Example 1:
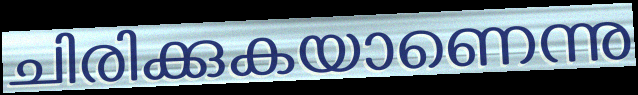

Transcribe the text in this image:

ചിരിക്കുകയാണെന്നു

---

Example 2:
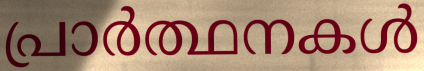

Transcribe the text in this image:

പ്രാർത്ഥനകൾ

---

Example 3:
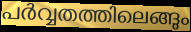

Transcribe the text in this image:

പർവ്വതത്തിലെങ്ങും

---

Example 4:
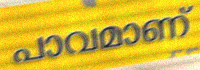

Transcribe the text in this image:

പാവമാണ്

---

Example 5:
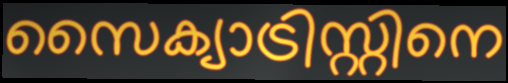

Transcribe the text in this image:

സൈക്യാട്രിസ്റ്റിനെ